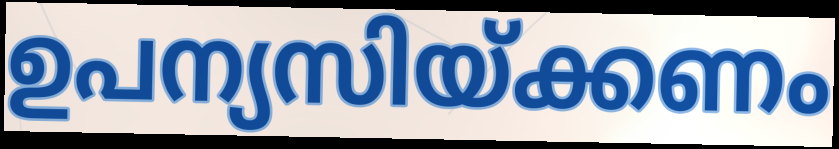
ഉപന്യസിയ്ക്കണം